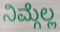
ನಿಮ್ಗೆಲ್ಲ